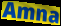
Amna